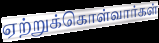
ஏற்றுக்கொள்வார்கள்